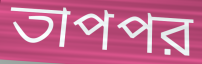
তাপপর